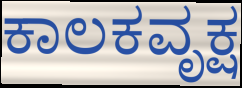
ಕಾಲಕವೃಕ್ಷ